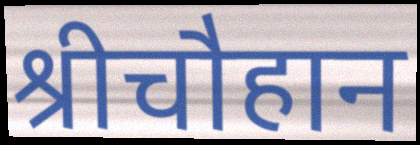
श्रीचौहान